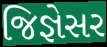
જિજ્ઞેસર